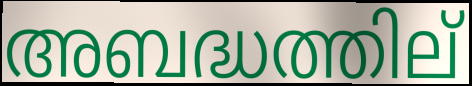
അബദ്ധത്തില്